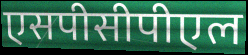
एसपीसीपीएल